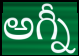
అగ్నీ